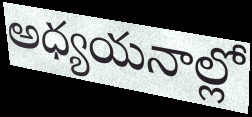
అధ్యయనాల్లో